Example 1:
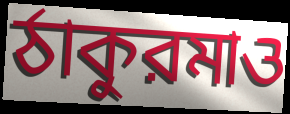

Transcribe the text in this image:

ঠাকুরমাও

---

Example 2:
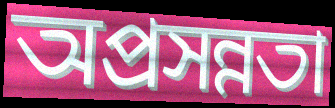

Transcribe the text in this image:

অপ্রসন্নতা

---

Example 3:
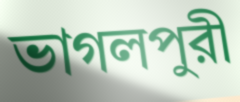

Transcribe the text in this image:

ভাগলপুরী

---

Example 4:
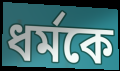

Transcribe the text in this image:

ধর্মকে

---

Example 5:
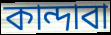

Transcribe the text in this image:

কান্দাবা